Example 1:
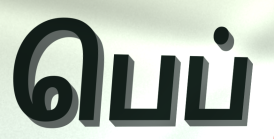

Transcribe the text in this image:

பெப்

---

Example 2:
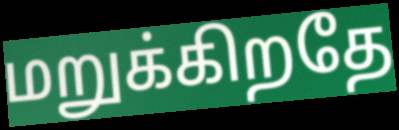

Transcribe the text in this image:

மறுக்கிறதே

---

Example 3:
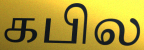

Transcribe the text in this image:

கபில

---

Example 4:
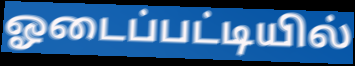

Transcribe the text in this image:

ஓடைப்பட்டியில்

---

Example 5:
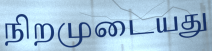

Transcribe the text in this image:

நிறமுடையது